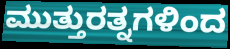
ಮುತ್ತುರತ್ನಗಳಿಂದ